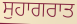
ਸੁਹਾਗਰਾਤ